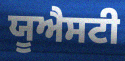
ਯੂਐਸਟੀ